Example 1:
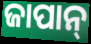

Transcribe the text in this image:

ଜାପାନ୍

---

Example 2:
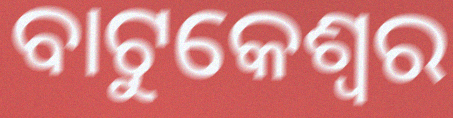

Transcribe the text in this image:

ବାଟୁକେଶ୍ୱର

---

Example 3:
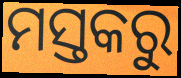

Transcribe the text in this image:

ମସ୍ତକରୁ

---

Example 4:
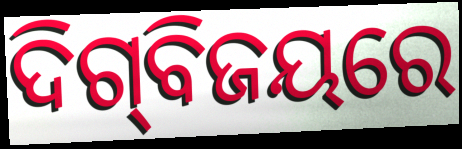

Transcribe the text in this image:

ଦିଗ୍‌ବିଜୟରେ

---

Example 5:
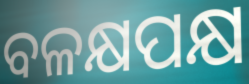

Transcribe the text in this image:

ବଳକ୍ଷପକ୍ଷ